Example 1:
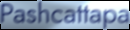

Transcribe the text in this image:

Pashcattapa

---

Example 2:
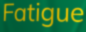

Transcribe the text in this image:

Fatigue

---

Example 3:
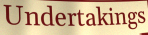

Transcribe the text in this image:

Undertakings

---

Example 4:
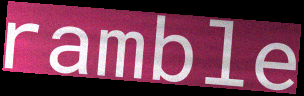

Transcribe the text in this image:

ramble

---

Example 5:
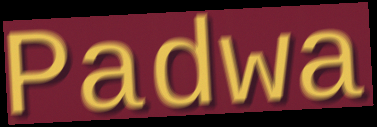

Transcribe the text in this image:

Padwa